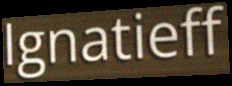
Ignatieff